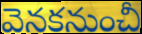
వెనకనుంచీ